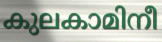
കുലകാമിനീ